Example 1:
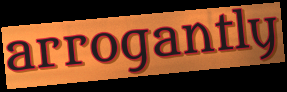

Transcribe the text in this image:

arrogantly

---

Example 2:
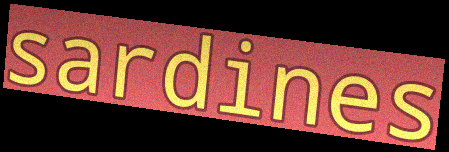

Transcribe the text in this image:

sardines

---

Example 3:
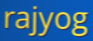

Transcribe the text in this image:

rajyog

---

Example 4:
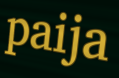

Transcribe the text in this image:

paija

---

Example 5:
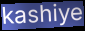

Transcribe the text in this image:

kashiye